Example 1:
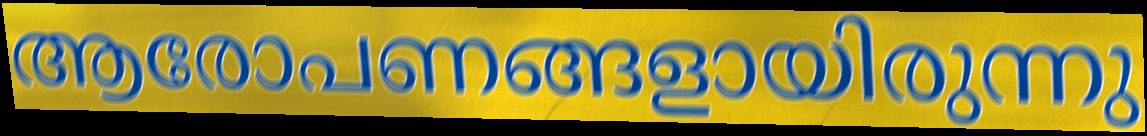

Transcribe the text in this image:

ആരോപണങ്ങളായിരുന്നു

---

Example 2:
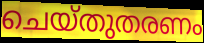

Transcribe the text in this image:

ചെയ്തുതരണം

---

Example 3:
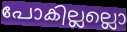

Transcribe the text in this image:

പോകില്ലല്ലൊ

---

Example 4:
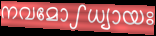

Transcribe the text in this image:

നവമോഽധ്യായഃ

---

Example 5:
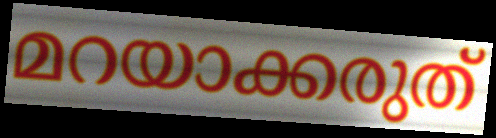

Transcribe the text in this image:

മറയാക്കരുത്